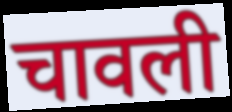
चावली